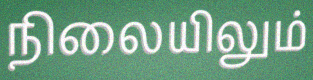
நிலையிலும்